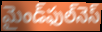
మైండ్‌ఫుల్‌నెస్